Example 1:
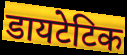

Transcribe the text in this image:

डायटेटिक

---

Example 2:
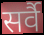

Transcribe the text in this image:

सर्वै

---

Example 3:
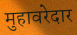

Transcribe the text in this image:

मुहावरेदार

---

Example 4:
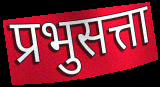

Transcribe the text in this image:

प्रभुसत्ता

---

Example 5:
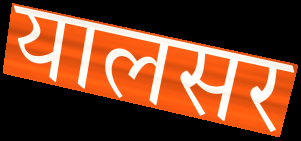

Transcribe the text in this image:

यालसर